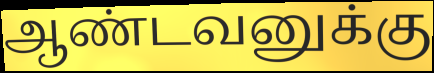
ஆண்டவனுக்கு